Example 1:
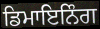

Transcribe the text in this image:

ਡਿਮਾਇਨਿੰਗ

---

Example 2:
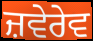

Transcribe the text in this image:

ਜ਼ਵੇਰੇਵ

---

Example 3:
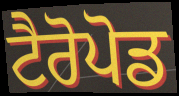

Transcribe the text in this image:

ਟੈਰੋਪੋਡ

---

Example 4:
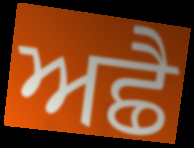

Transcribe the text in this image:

ਅਛੈ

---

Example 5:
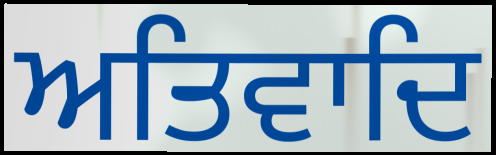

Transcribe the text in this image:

ਅਤਿਵਾਦਿ